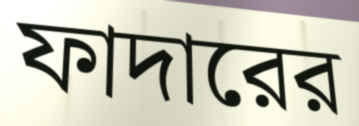
ফাদারের